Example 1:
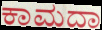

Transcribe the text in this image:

ಕಾಮದಾ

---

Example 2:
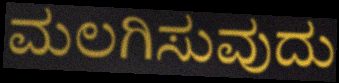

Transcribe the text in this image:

ಮಲಗಿಸುವುದು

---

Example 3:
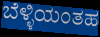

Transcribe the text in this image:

ಬೆಳ್ಳಿಯಂತಹ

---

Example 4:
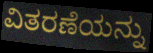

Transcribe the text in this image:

ವಿತರಣೆಯನ್ನು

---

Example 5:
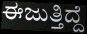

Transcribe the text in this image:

ಈಜುತ್ತಿದ್ದೆ